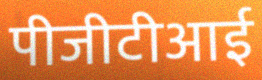
पीजीटीआई